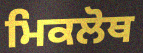
ਮਿਕਲੋਥ